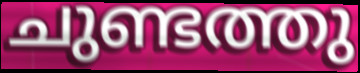
ചുണ്ടത്തു